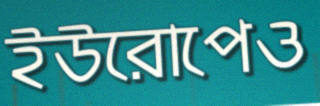
ইউরোপেও